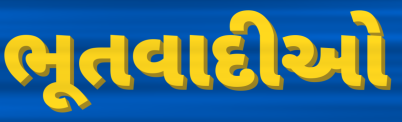
ભૂતવાદીઓ